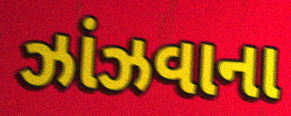
ઝાંઝવાના